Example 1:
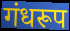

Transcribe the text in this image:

गंधरूप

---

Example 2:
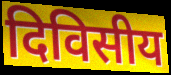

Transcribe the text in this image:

दिविसीय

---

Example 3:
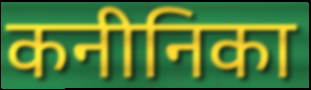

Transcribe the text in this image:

कनीनिका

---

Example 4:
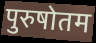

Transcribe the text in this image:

पुरुषोतम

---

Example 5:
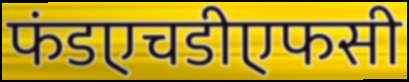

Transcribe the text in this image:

फंडएचडीएफसी